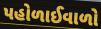
પહોળાઈવાળો